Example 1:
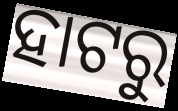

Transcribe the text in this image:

ହାଟରୁ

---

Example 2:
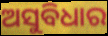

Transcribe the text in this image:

ଅସୁବିଧାର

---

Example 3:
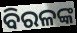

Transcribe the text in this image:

ବିରଳଙ୍କ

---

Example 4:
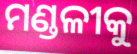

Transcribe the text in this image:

ମଣ୍ଡଳୀକୁ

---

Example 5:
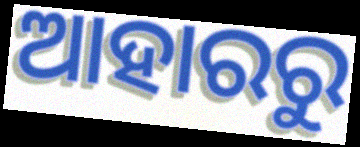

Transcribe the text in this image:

ଆହାରରୁ